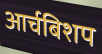
आर्चबिशप